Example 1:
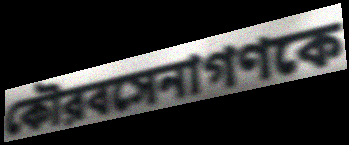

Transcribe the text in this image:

কৌরবসেনাগণকে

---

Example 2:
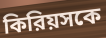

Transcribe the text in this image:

কিরিয়সকে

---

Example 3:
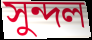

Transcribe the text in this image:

সুন্দল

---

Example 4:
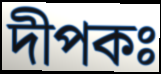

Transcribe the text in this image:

দীপকঃ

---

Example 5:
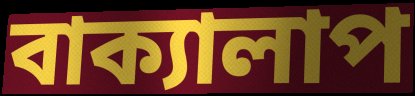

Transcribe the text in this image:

বাক্যালাপ